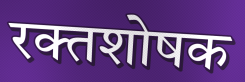
रक्तशोषक